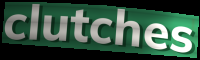
clutches